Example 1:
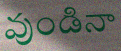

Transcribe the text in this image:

వుండినా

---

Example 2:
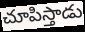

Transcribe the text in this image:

చూపిస్తాడు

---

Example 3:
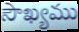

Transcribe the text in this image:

సౌఖ్యము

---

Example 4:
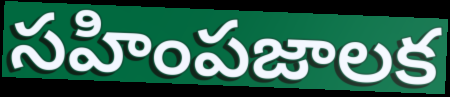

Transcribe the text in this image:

సహింపజాలక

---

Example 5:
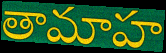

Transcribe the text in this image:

తామాహ